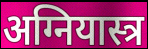
अग्नियास्त्र